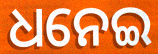
ଧନେଇ